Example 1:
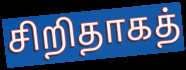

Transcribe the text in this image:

சிறிதாகத்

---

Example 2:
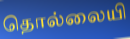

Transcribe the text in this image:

தொல்லையி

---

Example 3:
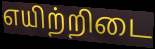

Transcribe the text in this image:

எயிற்றிடை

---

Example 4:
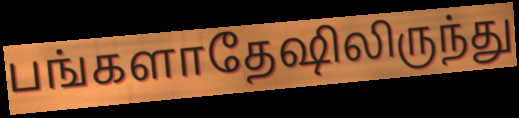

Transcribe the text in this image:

பங்களாதேஷிலிருந்து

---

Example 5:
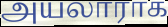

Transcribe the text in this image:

அயலாராக